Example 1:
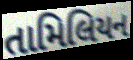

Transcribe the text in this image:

તામિલિયન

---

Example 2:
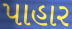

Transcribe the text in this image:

પાહાર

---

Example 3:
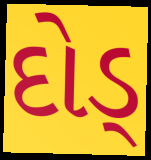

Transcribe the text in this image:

દોડ્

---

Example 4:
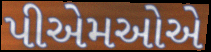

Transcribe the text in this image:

પીએમઓએ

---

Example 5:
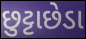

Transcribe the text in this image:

છુટ્ટાછેડા